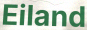
Eiland